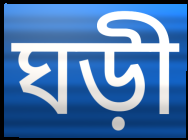
ঘড়ী